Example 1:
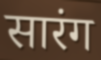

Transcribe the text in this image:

सारंग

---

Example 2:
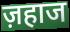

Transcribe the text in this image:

ज़हाज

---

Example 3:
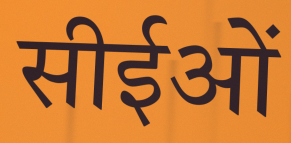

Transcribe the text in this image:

सीईओं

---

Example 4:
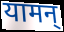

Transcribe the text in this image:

यामन्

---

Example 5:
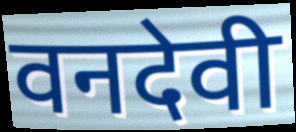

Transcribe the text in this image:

वनदेवी